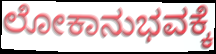
ಲೋಕಾನುಭವಕ್ಕೆ